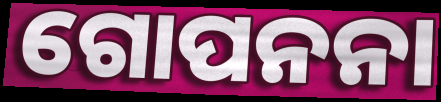
ଗୋପନନା